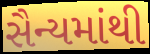
સૈન્યમાંથી